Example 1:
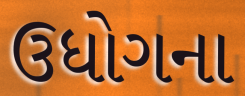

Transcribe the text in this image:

ઉધોગના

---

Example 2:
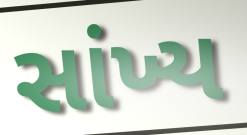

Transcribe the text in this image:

સાંખ્ય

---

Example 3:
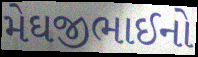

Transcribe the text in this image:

મેઘજીભાઈનો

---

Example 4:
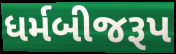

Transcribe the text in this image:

ધર્મબીજરૂપ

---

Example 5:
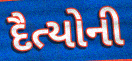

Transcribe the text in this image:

દૈત્યોની